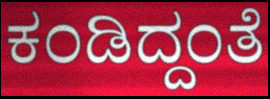
ಕಂಡಿದ್ದಂತೆ